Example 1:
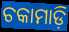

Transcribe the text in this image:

ଚକାମାଡ଼ି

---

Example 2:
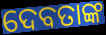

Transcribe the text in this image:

ଦେବତାଙ୍କ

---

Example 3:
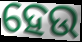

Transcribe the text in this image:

ହେଉ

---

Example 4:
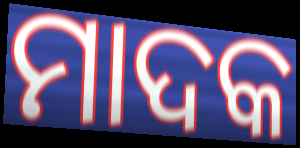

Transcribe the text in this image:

ମାଦକ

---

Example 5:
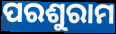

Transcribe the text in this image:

ପରଶୁରାମ